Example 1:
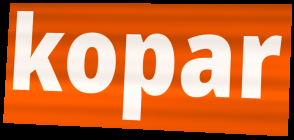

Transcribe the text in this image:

kopar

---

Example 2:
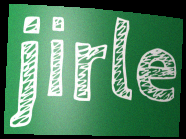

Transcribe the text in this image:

jirle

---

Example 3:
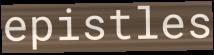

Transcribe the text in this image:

epistles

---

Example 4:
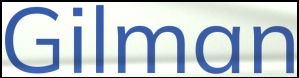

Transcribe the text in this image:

Gilman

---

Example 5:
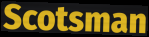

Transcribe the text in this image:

Scotsman